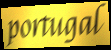
portugal